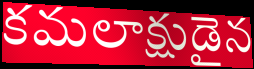
కమలాక్షుడైన